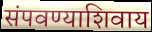
संपवण्याशिवाय